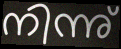
നിന്നു്